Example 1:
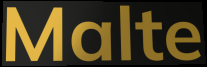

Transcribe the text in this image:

Malte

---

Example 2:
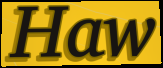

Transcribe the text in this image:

Haw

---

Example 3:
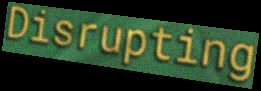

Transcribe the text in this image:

Disrupting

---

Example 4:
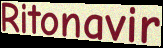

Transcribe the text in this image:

Ritonavir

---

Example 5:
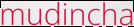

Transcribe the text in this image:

mudincha